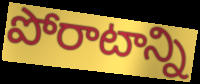
పోరాటాన్ని